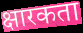
क्षारकता